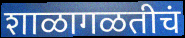
शाळागळतीचं